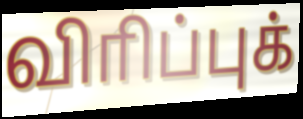
விரிப்புக்